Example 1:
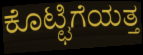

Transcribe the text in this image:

ಕೊಟ್ಟಿಗೆಯತ್ತ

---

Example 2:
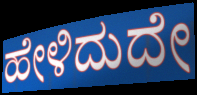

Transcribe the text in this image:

ಹೇಳಿದುದೇ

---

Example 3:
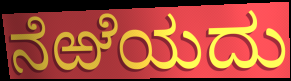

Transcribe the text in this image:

ನೆಱೆಯದು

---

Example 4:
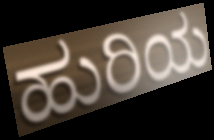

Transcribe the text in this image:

ಹುರಿಯ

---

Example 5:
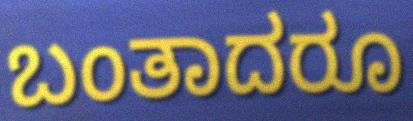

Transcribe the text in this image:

ಬಂತಾದರೂ